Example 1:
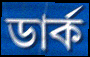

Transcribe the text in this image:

ডাৰ্ক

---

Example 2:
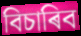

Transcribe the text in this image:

বিচাৰিব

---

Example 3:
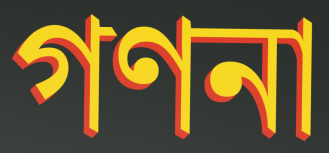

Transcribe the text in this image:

গণনা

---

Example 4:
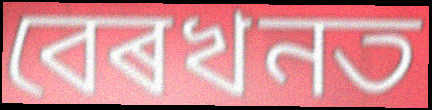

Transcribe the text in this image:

বেৰখনত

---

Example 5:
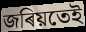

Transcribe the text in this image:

জৰিয়তেই